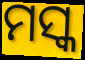
ମସ୍କ